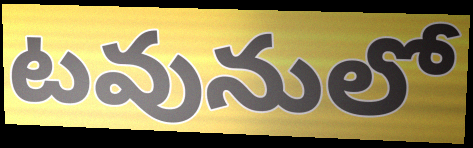
టవునులో